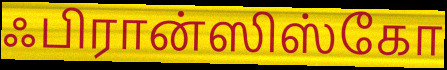
ஃபிரான்ஸிஸ்கோ